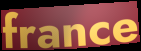
france